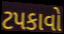
ટપકાવો